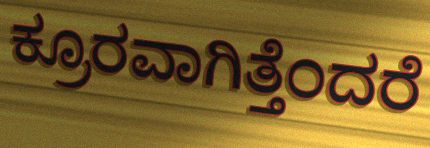
ಕ್ರೂರವಾಗಿತ್ತೆಂದರೆ